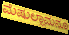
ಮೆಷುಲ್ಲಾಮನೂ